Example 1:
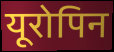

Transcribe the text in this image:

यूरोपिन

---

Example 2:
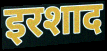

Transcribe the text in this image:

इरशाद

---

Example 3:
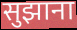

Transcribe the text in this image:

सुझाना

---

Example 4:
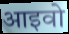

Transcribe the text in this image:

आइवो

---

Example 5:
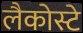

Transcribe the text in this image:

लैकोस्टे